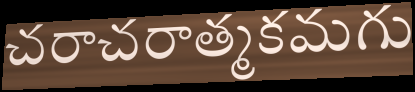
చరాచరాత్మకమగు